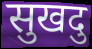
सुखदु